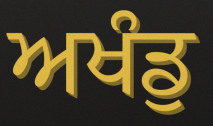
ਅਖੰਡੁ